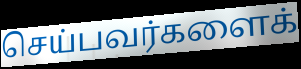
செய்பவர்களைக்